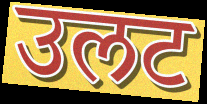
उलट